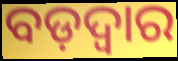
ବଡ଼ଦ୍ୱାର